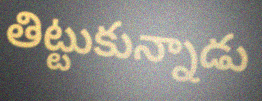
తిట్టుకున్నాడు